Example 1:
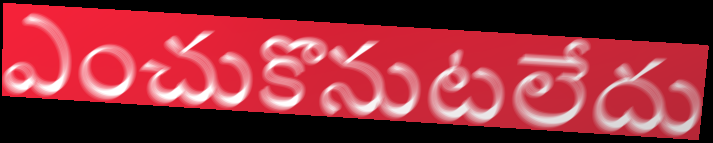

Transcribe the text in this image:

ఎంచుకొనుటలేదు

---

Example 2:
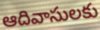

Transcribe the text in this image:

ఆదివాసులకు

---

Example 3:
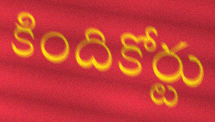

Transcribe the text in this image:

కిందికోర్టు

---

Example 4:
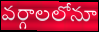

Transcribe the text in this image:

వర్గాలలోనూ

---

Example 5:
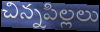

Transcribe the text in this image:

చిన్నపిల్లలు